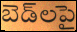
బెడ్‌లపై